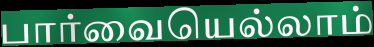
பார்வையெல்லாம்